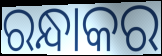
ରନ୍ଧାକର